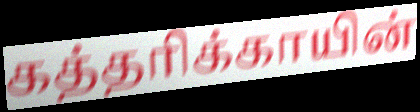
கத்தரிக்காயின்